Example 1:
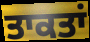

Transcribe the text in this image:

ਤਾਕਤਾਂ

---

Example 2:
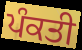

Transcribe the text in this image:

ਪੰਕਤੀ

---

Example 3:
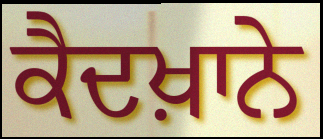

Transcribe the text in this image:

ਕੈਦਖ਼ਾਨੇ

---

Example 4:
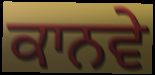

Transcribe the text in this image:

ਕਾਨਵੇ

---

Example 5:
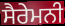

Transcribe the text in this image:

ਸੈਰੇਮਨੀ